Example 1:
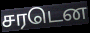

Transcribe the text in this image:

சரடென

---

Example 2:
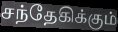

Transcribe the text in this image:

சந்தேகிக்கும்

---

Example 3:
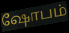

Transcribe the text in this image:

ஷோபம்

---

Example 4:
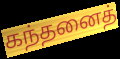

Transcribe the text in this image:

கந்தனைத்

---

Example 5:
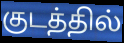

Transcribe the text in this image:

குடத்தில்